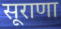
सूराणा